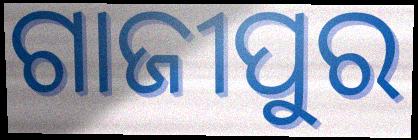
ଗାଜୀପୁର